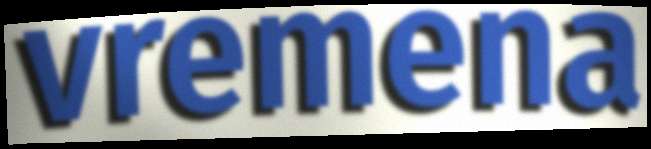
vremena